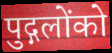
पुद्गलोंको